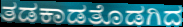
ತಡಕಾಡತೊಡಗಿದ